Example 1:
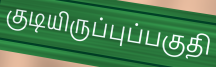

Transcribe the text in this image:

குடியிருப்புப்பகுதி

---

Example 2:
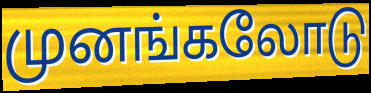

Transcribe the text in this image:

முனங்கலோடு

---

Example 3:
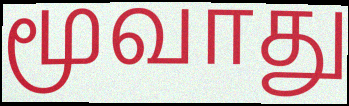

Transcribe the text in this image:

மூவாது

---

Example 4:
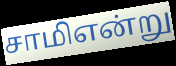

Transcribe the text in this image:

சாமிஎன்று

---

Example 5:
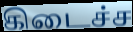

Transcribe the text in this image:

கிடைச்ச